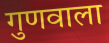
गुणवाला